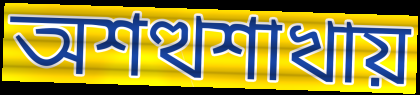
অশত্থশাখায়